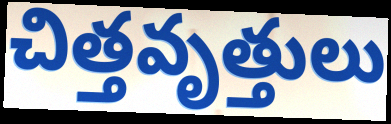
చిత్తవృత్తులు